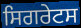
ਸਿਗਰੇਟਸ